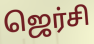
ஜெர்சி